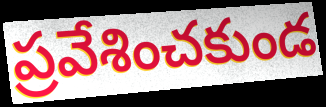
ప్రవేశించకుండ